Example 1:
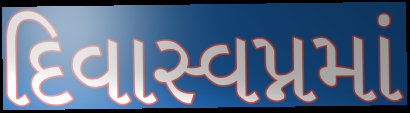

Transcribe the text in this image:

દિવાસ્વપ્નમાં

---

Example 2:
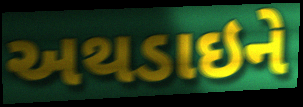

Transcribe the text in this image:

અથડાઇને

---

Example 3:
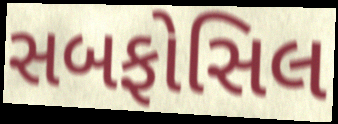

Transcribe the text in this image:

સબફોસિલ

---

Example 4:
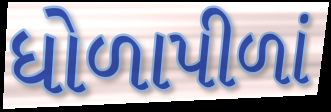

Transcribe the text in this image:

ધોળાપીળાં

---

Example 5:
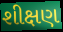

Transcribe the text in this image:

શીક્ષણ